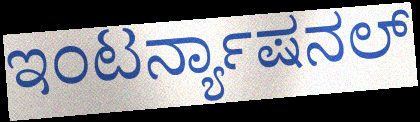
ಇಂಟರ್ನ್ಯಾಷನಲ್